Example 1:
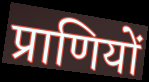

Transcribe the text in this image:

प्राणियों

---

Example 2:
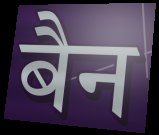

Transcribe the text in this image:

बैन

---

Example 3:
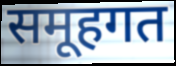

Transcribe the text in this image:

समूहगत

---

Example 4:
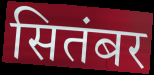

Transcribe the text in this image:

सितंबर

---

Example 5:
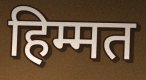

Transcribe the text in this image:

हिम्मत